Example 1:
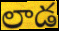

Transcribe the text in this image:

లాడ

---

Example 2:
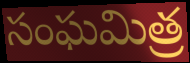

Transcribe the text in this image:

సంఘమిత్ర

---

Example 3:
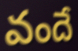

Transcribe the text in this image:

వందే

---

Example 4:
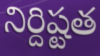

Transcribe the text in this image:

నిర్దిష్టత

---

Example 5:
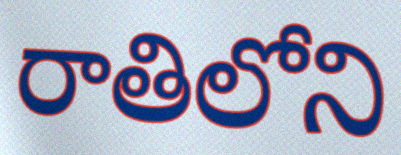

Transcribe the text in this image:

రాతిలోని